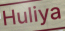
Huliya